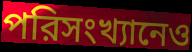
পরিসংখ্যানেও